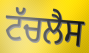
ਟੱਚਲੈਸ